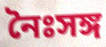
নৈঃসঙ্গ